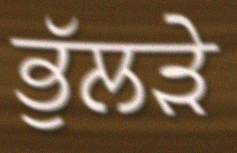
ਭੁੱਲੜੇ